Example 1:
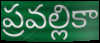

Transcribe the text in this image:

ప్రవల్లికా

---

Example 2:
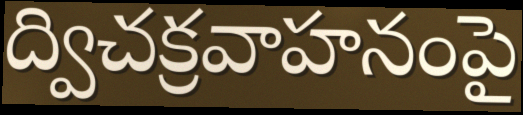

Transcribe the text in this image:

ద్విచక్రవాహనంపై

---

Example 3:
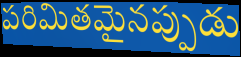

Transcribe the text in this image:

పరిమితమైనప్పుడు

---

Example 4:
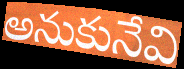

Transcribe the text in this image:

అనుకునేవి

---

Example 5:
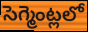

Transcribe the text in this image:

సెగ్మెంట్లలో